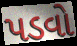
પડવો